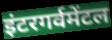
इंटरगर्वमेंटल